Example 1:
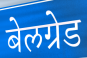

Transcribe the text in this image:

बेलग्रेड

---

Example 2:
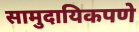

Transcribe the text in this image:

सामुदायिकपणे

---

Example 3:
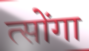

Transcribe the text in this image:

त्सोंगा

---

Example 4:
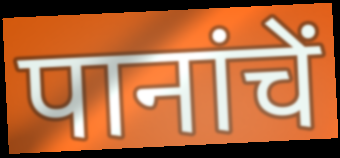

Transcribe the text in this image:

पानांचें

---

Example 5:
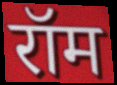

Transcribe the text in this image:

रॉम